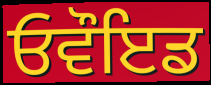
ਓਵੌਇਡ